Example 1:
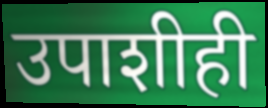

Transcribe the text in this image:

उपाशीही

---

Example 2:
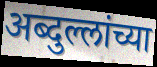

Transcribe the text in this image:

अब्दुल्लांच्या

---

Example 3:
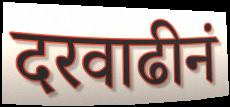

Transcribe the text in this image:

दरवाढीनं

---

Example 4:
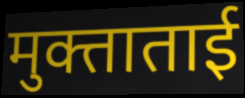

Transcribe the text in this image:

मुक्ताताई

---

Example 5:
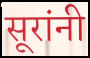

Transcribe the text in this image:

सूरांनी